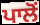
ਪਾਲੋਂ